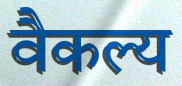
वैकल्य